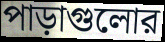
পাড়াগুলোর